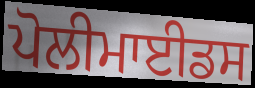
ਪੋਲੀਮਾਈਡਸ